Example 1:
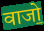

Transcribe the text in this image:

वाजो॒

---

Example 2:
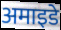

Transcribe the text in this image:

अमाइडे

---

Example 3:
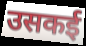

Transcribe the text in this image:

उसकई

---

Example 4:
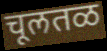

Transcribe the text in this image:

चूलतळ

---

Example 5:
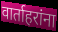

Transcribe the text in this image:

वार्ताहरांना